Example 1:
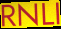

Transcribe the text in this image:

RNLI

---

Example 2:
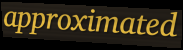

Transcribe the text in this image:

approximated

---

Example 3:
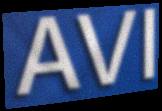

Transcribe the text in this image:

AVI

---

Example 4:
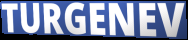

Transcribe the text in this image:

TURGENEV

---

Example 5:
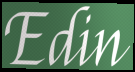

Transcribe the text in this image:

Edin